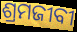
ଶ୍ରମଜୀବୀ